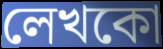
লেখকো